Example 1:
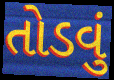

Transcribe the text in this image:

તોડવું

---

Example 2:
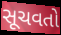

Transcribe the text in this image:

સૂચવતો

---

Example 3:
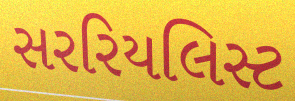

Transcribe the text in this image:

સરરિયલિસ્ટ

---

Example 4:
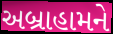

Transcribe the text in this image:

અબ્રાહામને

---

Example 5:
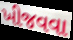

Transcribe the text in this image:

ખીજવવા